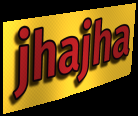
jhajha